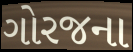
ગોરજના